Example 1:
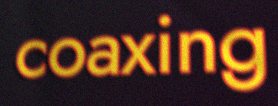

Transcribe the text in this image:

coaxing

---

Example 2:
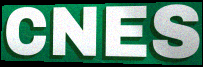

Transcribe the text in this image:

CNES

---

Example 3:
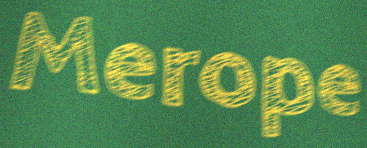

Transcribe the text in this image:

Merope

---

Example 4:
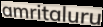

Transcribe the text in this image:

amritaluru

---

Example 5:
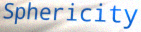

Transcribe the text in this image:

Sphericity